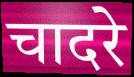
चादरे